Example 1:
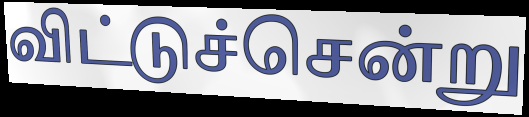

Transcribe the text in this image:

விட்டுச்சென்று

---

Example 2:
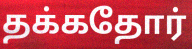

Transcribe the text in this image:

தக்கதோர்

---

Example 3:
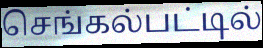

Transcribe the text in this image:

செங்கல்பட்டில்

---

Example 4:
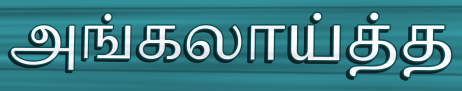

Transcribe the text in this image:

அங்கலாய்த்த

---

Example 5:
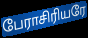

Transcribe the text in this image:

பேராசிரியரே